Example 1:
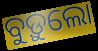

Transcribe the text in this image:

ବୁଡ଼ୁଲୋ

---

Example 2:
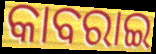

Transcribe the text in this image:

କାବରାଇ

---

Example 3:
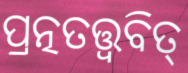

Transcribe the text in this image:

ପ୍ରତ୍ନତତ୍ତ୍ଵବିତ୍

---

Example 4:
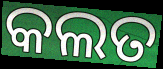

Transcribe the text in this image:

କଲତ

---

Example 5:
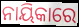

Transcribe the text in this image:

ନାୟିକାରେ